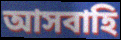
আসবাহি